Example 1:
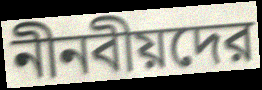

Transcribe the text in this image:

নীনবীয়দের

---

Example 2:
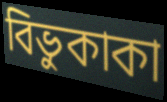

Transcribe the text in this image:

বিভুকাকা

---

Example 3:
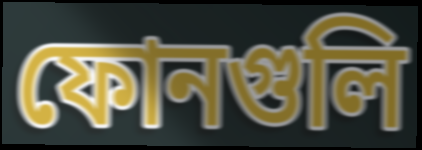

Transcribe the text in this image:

ফোনগুলি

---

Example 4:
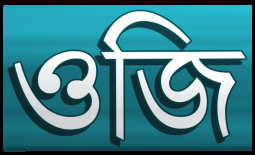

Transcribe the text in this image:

ওজি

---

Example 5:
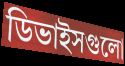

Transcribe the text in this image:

ডিভাইসগুলো